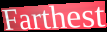
Farthest